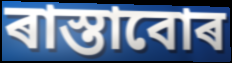
ৰাস্তাবোৰ